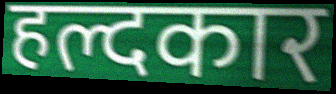
हल्दकार